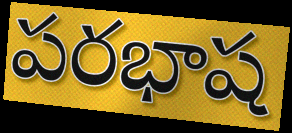
పరభాష